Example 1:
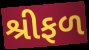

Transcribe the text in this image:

શ્રીફળ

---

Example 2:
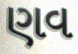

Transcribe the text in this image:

ણવ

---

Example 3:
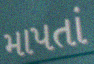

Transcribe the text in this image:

માપતાં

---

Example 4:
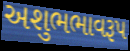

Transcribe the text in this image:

અશુભભાવરૂપ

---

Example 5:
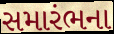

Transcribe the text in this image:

સમારંભના